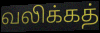
வலிக்கத்